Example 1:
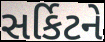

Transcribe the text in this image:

સર્કિટને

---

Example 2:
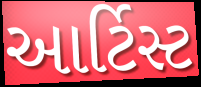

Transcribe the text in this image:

આર્ટિસ્ટ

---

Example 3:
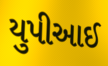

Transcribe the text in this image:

યુપીઆઈ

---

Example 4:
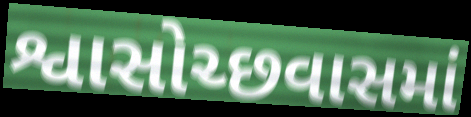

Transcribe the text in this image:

શ્વાસોચ્છવાસમાં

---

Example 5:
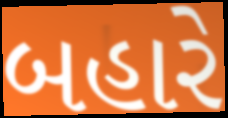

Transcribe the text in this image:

બહારે